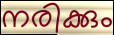
നരിക്കും